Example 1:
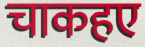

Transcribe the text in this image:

चाकहए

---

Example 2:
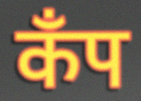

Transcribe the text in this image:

कॅंप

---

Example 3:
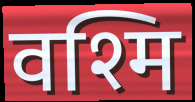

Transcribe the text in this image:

वश्मि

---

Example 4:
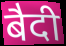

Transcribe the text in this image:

बैदी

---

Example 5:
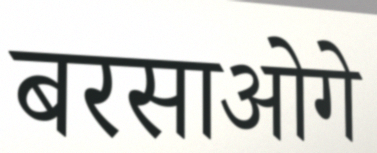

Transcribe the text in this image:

बरसाओगे